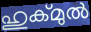
ഹുക്മുൽ